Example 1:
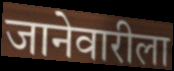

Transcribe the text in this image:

जानेवारीला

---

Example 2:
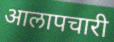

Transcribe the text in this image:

आलापचारी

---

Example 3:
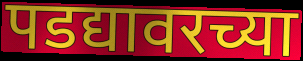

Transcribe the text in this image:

पडद्यावरच्या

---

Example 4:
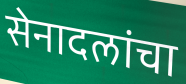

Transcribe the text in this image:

सेनादलांचा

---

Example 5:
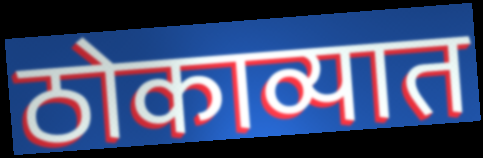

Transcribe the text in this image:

ठोकाव्यात